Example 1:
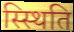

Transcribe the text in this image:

स्स्थिति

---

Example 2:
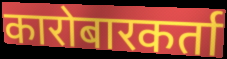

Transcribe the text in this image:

कारोबारकर्ता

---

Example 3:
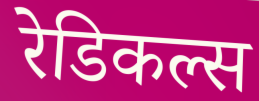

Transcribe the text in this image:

रेडिकल्स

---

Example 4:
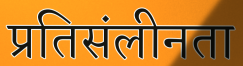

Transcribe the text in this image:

प्रतिसंलीनता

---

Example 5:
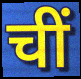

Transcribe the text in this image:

चीं